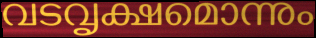
വടവൃക്ഷമൊന്നും